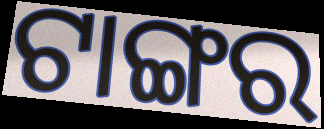
ଟାଙ୍ଗର